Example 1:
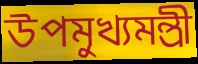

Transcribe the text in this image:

উপমুখ্যমন্ত্রী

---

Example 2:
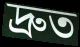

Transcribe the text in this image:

দ্রুত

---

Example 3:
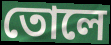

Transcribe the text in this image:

তোলে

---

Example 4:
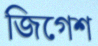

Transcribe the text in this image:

জিগেশ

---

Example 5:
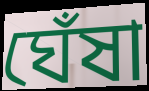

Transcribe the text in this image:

ঘেঁষা